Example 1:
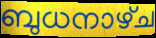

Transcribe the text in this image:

ബുധനാഴ്‌ച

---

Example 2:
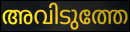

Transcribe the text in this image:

അവിടുത്തേ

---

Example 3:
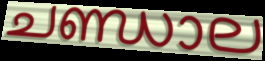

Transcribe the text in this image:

ചണ്ഡാല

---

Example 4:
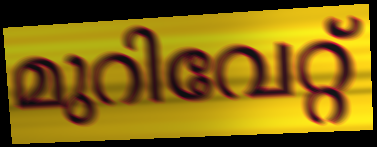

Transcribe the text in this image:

മുറിവേറ്റ്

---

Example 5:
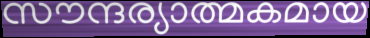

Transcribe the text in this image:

സൗന്ദര്യാത്മകമായ